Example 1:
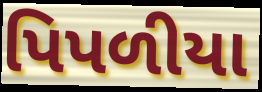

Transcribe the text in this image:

પિપળીયા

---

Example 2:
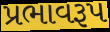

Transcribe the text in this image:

પ્રભાવરૂપ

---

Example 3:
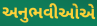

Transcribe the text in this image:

અનુભવીઓએ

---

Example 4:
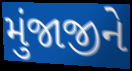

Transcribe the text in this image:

મુંજાજીને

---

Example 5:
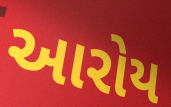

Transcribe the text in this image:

આરોય